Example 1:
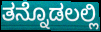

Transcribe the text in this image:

ತನ್ನೊಡಲಲ್ಲಿ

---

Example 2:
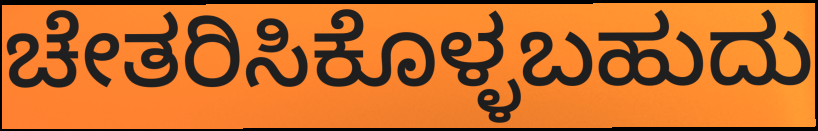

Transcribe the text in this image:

ಚೇತರಿಸಿಕೊಳ್ಳಬಹುದು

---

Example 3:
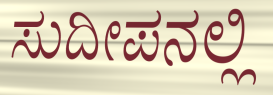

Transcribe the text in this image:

ಸುದೀಪನಲ್ಲಿ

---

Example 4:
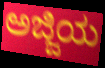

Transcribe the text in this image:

ಅಜ್ಜಿಯ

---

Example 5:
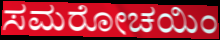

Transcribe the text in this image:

ಸಮರೋಚಯಿಂ